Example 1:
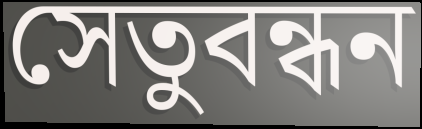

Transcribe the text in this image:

সেতুবন্ধন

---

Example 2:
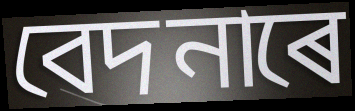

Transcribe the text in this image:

বেদনাৰে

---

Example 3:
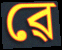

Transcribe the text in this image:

ৱে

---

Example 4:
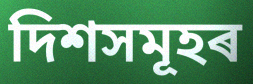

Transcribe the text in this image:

দিশসমূহৰ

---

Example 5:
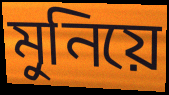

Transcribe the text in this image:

মুনিয়ে